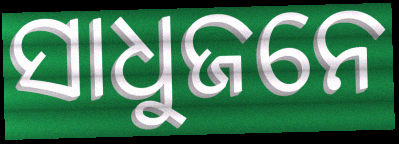
ସାଧୁଜନେ